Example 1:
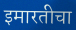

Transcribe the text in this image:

इमारतीचा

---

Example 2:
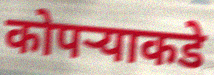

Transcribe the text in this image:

कोपऱ्याकडे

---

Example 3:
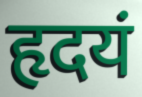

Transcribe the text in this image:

हृदयं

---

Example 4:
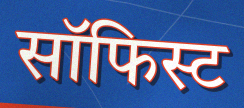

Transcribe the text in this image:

सॉफिस्ट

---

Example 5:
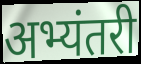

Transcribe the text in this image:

अभ्यंतरी